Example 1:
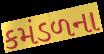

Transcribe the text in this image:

કમંડળના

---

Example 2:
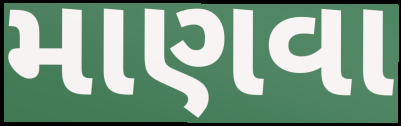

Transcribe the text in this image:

માણવા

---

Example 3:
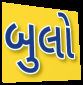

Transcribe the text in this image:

બુલો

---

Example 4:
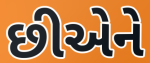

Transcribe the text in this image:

છીએને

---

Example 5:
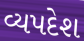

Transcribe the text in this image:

વ્યપદેશ